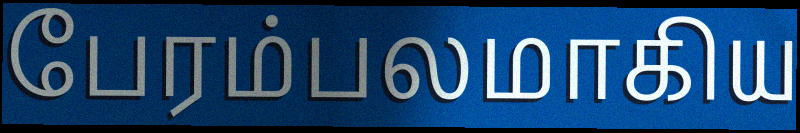
பேரம்பலமாகிய